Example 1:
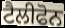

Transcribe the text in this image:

ਟੈਲੀਫੋਨ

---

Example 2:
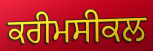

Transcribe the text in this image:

ਕਰੀਮਸੀਕਲ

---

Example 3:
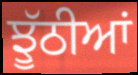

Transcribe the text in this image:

ਝੂੱਠੀਆਂ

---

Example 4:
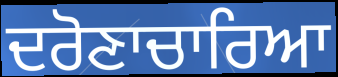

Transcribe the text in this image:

ਦਰੋਣਾਚਾਰਿਆ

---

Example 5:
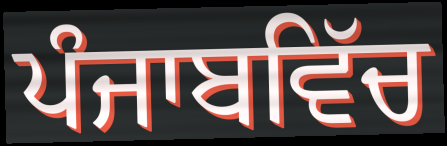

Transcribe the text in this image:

ਪੰਜਾਬਵਿੱਚ